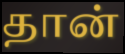
தான்